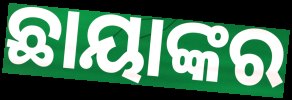
ଛାୟାଙ୍କର